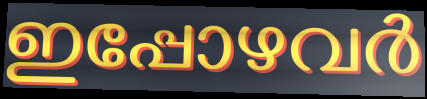
ഇപ്പോഴവർ